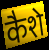
कैशे